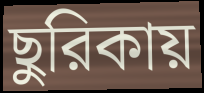
ছুরিকায়